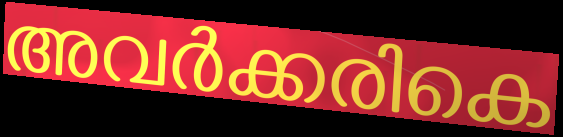
അവർക്കരികെ